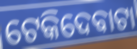
ଟେକିଦେବାଟା